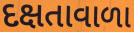
દક્ષતાવાળા